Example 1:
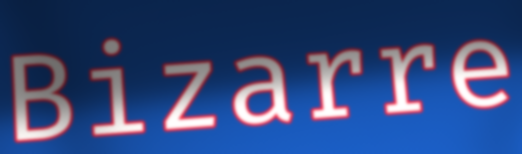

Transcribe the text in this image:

Bizarre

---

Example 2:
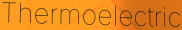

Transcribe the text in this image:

Thermoelectric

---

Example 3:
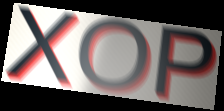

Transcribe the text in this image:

XOP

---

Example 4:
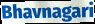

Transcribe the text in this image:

Bhavnagari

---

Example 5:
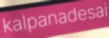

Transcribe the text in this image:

kalpanadesai